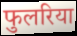
फुलरिया